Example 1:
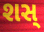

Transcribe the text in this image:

શસ્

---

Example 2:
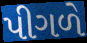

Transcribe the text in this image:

પીગળે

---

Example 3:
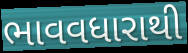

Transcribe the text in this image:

ભાવવધારાથી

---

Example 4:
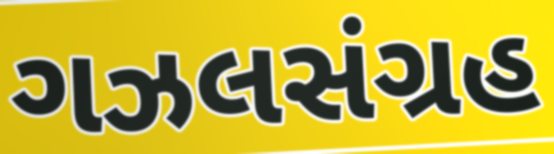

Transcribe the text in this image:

ગઝલસંગ્રહ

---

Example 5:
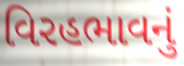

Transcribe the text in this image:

વિરહભાવનું